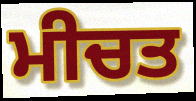
ਮੀਚਤ